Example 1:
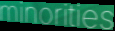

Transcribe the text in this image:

minorities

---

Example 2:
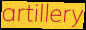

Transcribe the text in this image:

artillery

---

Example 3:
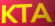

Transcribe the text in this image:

KTA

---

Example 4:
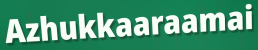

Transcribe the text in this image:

Azhukkaaraamai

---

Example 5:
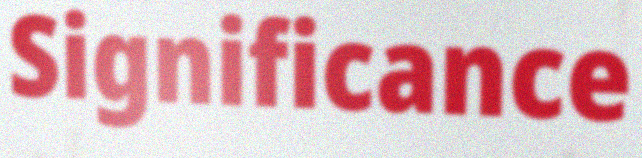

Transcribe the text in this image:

Significance